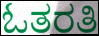
ಓತರತಿ